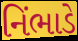
નિંભાડે